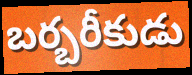
బర్బరీకుడు